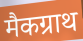
मैकग्राथ